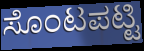
ಸೊಂಟಪಟ್ಟಿ